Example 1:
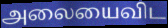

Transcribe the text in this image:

அலையைவிட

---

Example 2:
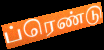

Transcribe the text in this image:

ப்ரெண்டு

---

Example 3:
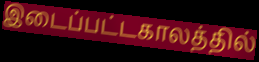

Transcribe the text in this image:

இடைப்பட்டகாலத்தில்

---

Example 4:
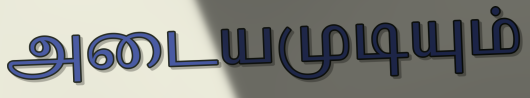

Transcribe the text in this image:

அடையமுடியும்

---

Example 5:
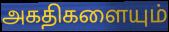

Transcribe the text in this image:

அகதிகளையும்